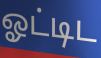
ஓட்டிட